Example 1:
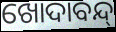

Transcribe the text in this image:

ଖୋଦାବନ୍ଦ୍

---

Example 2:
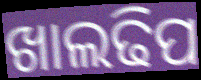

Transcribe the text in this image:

ଖାଲଢିପ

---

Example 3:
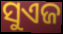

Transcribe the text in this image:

ସୁଏଜ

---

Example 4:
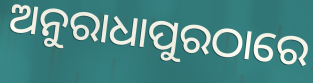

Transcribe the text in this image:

ଅନୁରାଧାପୁରଠାରେ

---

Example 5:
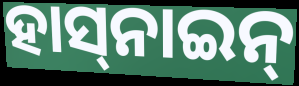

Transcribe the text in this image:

ହାସ୍‌ନାଇନ୍